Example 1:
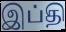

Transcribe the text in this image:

இப்தி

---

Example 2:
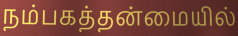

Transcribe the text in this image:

நம்பகத்தன்மையில்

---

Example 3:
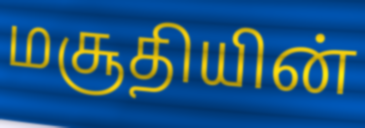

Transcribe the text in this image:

மசூதியின்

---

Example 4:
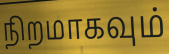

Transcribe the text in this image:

நிறமாகவும்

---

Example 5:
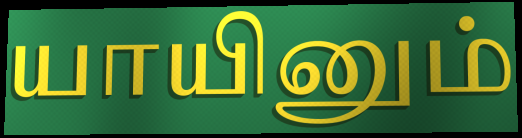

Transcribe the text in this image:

யாயினும்